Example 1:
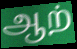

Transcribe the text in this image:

ஆற்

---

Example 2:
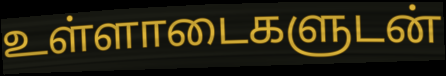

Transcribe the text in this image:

உள்ளாடைகளுடன்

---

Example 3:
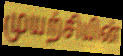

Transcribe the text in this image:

முயற்சியின்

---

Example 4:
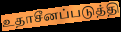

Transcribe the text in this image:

உதாசீனப்படுத்தி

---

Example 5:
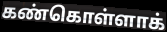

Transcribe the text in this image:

கண்கொள்ளாக்